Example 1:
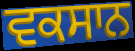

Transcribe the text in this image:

ਵਕਸਾਨ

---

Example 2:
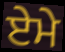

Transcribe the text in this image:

ਏਮੇ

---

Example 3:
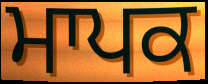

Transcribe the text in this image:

ਮਾਪਕ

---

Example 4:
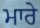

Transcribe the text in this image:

ਮਾਰੇ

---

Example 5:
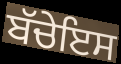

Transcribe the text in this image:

ਬੱਚੇਇਸ